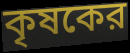
কৃষকের